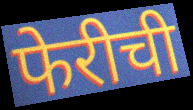
फेरीची